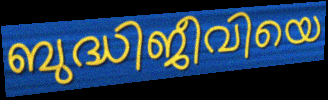
ബുദ്ധിജീവിയെ